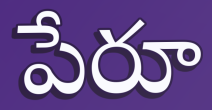
పేరూ